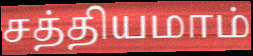
சத்தியமாம்